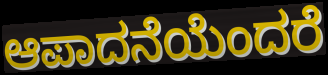
ಆಪಾದನೆಯೆಂದರೆ